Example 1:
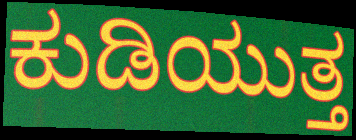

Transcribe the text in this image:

ಕುಡಿಯುತ್ತ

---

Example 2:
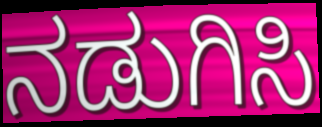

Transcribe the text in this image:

ನಡುಗಿಸಿ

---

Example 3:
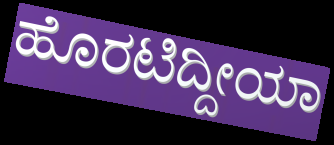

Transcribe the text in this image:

ಹೊರಟಿದ್ದೀಯಾ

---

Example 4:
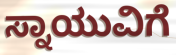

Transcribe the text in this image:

ಸ್ನಾಯುವಿಗೆ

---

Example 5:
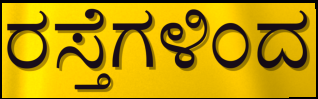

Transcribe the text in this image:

ರಸ್ತೆಗಳಿಂದ